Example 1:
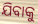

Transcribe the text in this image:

ଯିବାକୁ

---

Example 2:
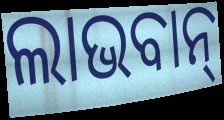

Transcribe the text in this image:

ଲାଭବାନ୍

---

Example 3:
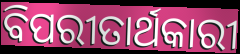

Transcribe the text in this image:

ବିପରୀତାର୍ଥକାରୀ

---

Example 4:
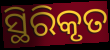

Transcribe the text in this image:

ସ୍ଥିରିକୃତ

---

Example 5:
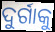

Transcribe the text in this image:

ଦୁର୍ଗାକୁ